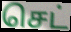
செட்